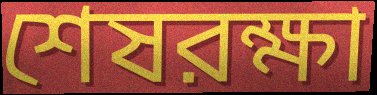
শেষরক্ষা